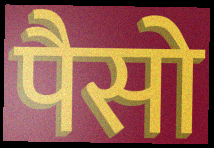
पैसो